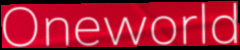
Oneworld